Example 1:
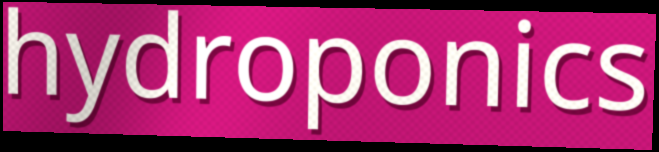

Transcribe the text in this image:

hydroponics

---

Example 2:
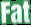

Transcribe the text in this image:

Fat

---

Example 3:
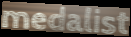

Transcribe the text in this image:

medalist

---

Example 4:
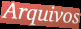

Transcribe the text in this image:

Arquivos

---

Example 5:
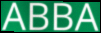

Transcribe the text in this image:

ABBA